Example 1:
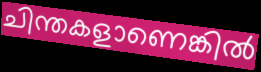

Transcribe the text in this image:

ചിന്തകളാണെങ്കിൽ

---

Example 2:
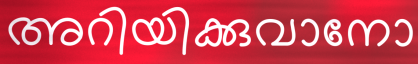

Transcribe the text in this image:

അറിയിക്കുവാനോ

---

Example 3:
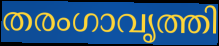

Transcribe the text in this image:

തരംഗാവൃത്തി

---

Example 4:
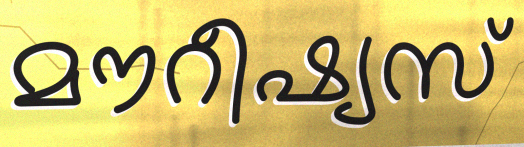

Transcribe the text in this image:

മൗറീഷ്യസ്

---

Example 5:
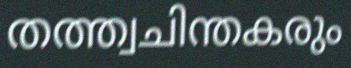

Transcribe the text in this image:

തത്ത്വചിന്തകരും